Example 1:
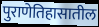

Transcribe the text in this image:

पुराणेतिहासातील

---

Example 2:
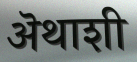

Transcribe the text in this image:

ऄथाशी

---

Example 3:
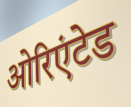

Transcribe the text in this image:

ओरिएंटेड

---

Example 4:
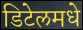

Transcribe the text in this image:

डिटेलमधे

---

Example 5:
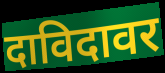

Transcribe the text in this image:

दाविदावर